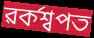
ৱৰ্কশ্বপত